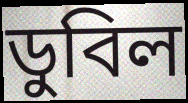
ডুবিল